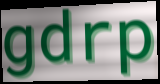
gdrp